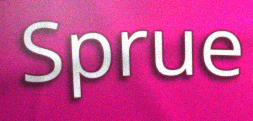
Sprue